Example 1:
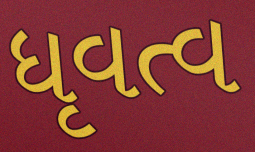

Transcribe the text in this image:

ધૃવત્વ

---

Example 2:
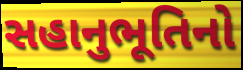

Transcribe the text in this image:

સહાનુભૂતિનો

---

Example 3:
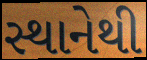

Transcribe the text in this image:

સ્થાનેથી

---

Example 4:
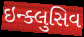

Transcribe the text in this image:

ઇન્ક્લુસિવ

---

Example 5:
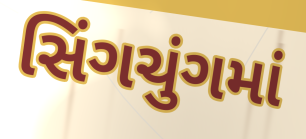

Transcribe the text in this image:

સિંગચુંગમાં